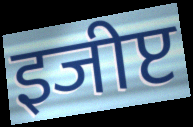
इजीप्ट